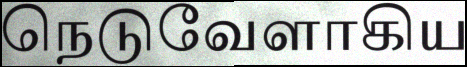
நெடுவேளாகிய